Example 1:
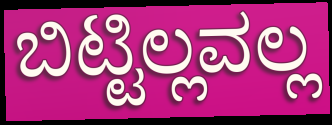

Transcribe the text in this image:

ಬಿಟ್ಟಿಲ್ಲವಲ್ಲ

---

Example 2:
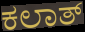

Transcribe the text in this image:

ಕಲಾತ್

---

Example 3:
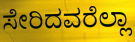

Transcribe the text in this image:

ಸೇರಿದವರೆಲ್ಲಾ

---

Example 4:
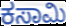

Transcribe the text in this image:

ಕಸಾಮಿ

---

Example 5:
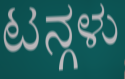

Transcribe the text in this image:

ಟನ್ಗಳು